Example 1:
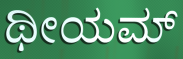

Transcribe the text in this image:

ಥೀಯಮ್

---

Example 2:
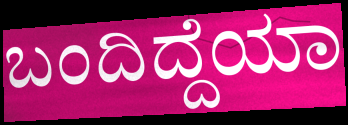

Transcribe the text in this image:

ಬಂದಿದ್ದೆಯಾ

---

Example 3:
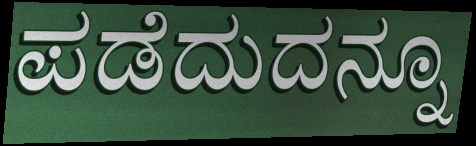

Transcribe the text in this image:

ಪಡೆದುದನ್ನೂ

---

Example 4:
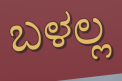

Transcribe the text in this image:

ಬಳಲ್ಲ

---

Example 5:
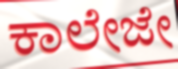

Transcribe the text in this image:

ಕಾಲೇಜೇ